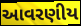
આવરણીય